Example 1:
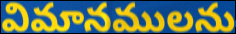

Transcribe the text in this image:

విమానములను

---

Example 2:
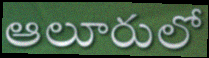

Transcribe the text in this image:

ఆలూరులో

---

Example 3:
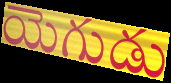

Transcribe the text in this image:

యెగుడు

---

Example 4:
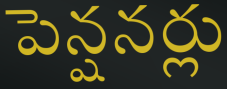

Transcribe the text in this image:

పెన్షనర్లు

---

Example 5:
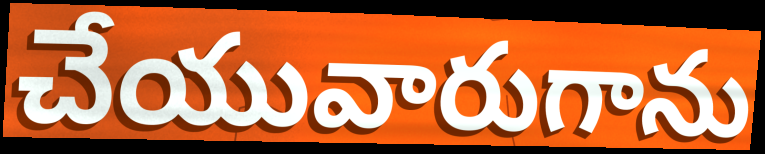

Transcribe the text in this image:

చేయువారుగాను